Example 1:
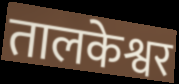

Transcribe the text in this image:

तालकेश्वर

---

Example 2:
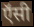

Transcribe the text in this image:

ऍसी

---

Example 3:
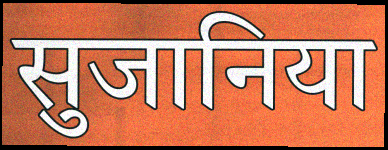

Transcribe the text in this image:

सुजानिया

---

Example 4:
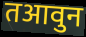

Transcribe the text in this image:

तआवुन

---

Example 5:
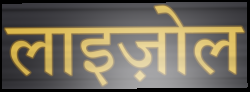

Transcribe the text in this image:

लाइज़ोल